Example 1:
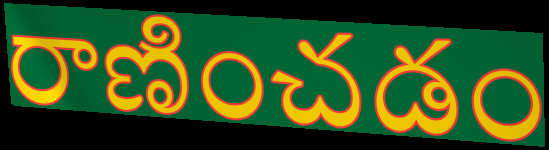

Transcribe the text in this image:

రాణించడం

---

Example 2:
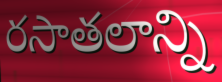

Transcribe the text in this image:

రసాతలాన్ని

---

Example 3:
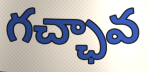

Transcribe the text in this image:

గచ్ఛావ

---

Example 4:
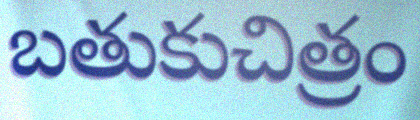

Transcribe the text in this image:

బతుకుచిత్రం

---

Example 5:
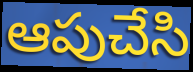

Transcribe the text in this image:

ఆపుచేసి